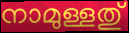
നാമുള്ളതു്